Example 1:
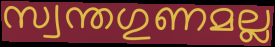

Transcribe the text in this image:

സ്വന്തഗുണമല്ല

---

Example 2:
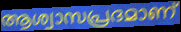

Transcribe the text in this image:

ആശ്വാസപ്രദമാണ്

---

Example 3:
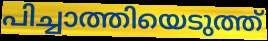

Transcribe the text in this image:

പിച്ചാത്തിയെടുത്ത്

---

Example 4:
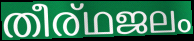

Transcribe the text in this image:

തീര്ഥജലം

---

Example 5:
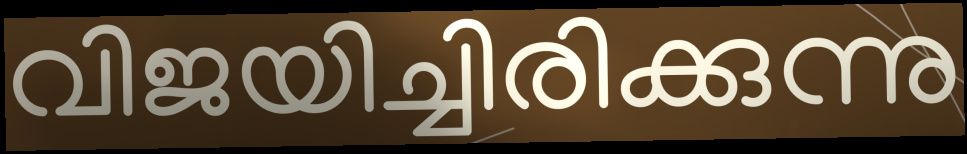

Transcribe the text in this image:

വിജയിച്ചിരിക്കുന്നു